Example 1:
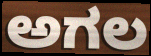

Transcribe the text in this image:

ಅಗಲ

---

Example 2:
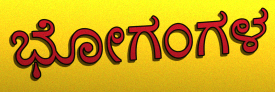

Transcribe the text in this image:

ಭೋಗಂಗಳ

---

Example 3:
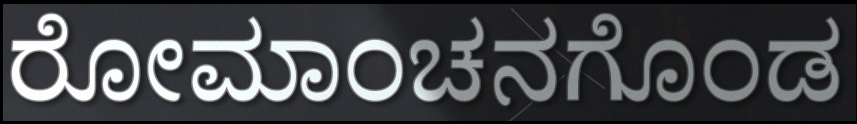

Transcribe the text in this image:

ರೋಮಾಂಚನಗೊಂಡ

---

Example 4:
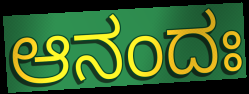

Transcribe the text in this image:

ಆನಂದಃ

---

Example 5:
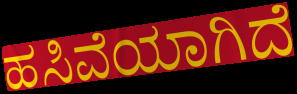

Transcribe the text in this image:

ಹಸಿವೆಯಾಗಿದೆ